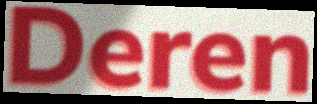
Deren